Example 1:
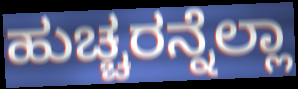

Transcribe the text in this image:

ಹುಚ್ಚರನ್ನೆಲ್ಲಾ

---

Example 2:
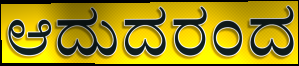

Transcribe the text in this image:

ಆದುದರಂದ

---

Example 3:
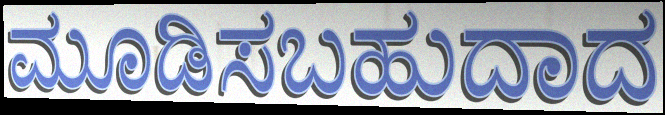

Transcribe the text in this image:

ಮೂಡಿಸಬಹುದಾದ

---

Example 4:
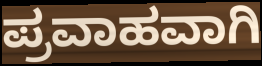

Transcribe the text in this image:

ಪ್ರವಾಹವಾಗಿ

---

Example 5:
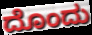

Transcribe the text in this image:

ದೊಂದು